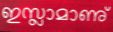
ഇസ്ലാമാണു്